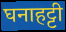
घनाहट्टी